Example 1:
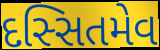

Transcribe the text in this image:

દસ્સિતમેવ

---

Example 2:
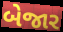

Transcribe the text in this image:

બેજાર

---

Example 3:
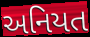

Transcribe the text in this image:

અનિયત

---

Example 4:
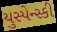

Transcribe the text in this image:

યુસ્પેન્સ્કી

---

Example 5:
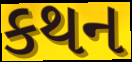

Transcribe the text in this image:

કથન